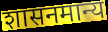
शासनमान्य